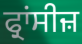
ਫ੍ਰਾਂਸੀਜ਼